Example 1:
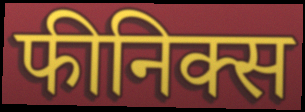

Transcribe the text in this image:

फीनिक्स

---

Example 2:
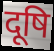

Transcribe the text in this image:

दूषि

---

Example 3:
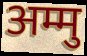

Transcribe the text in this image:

अम्मु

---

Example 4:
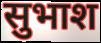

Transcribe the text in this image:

सुभाश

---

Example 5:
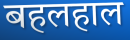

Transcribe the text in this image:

बहलहाल